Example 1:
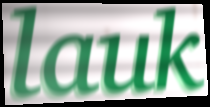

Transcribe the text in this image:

lauk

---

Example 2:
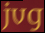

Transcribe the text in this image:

jug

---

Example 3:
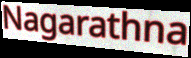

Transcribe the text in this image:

Nagarathna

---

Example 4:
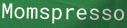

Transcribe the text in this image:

Momspresso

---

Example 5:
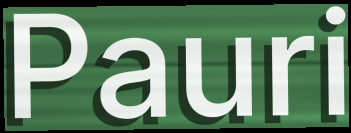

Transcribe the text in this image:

Pauri